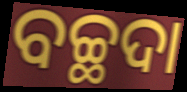
ବଚ୍ଛଦା